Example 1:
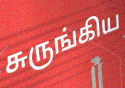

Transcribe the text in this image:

சுருங்கிய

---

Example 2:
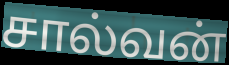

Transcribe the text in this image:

சால்வன்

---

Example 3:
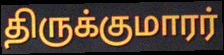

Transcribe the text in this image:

திருக்குமாரர்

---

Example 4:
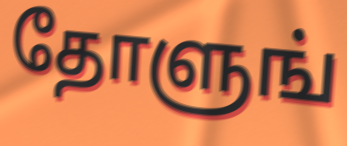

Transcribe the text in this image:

தோளுங்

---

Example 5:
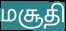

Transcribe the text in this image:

மசூதி